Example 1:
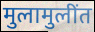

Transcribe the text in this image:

मुलामुलींत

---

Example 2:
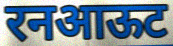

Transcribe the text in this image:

रनआऊट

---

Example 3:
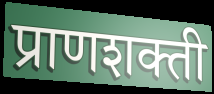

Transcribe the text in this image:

प्राणशक्ती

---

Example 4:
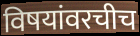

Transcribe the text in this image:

विषयांवरचीच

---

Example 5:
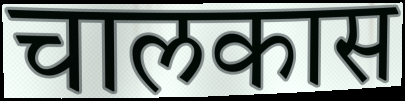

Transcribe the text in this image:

चालकास